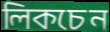
লিকচেন